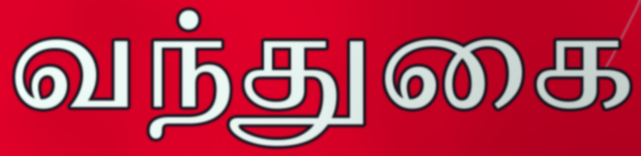
வந்துகை